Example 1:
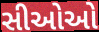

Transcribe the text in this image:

સીઓઓ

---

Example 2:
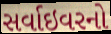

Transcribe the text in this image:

સર્વાઇવરનો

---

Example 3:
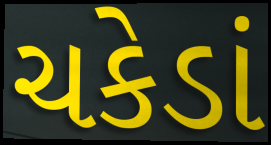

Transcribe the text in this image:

ચકેડાં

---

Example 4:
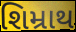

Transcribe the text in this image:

શિમ્રાથ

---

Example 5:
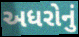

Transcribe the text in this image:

અધરોનું